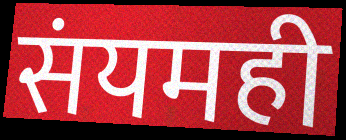
संयमही